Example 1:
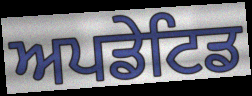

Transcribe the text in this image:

ਅਪਡੇਟਿਡ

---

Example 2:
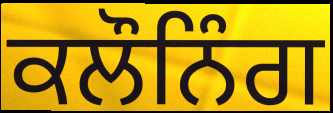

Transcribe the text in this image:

ਕਲੌਨਿੰਗ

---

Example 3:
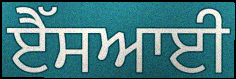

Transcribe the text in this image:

ਏੈੱਸਆਈ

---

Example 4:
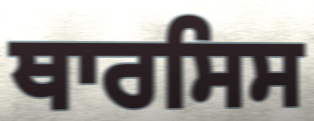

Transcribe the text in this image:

ਥਾਰਸਿਸ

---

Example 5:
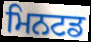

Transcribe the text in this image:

ਮਿਨਟਡ